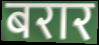
बरार